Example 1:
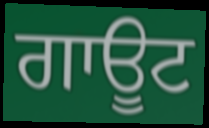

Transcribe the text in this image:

ਗਾਊਟ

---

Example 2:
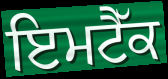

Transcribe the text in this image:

ਇਮਟੈੱਕ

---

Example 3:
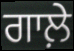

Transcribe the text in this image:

ਗਾਲ਼ੇ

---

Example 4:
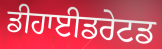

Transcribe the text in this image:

ਡੀਹਾਈਡਰੇਟਡ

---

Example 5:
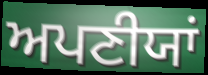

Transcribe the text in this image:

ਅਪਣੀਯਾਂ